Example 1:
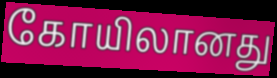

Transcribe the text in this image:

கோயிலானது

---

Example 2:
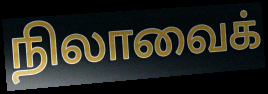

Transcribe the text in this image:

நிலாவைக்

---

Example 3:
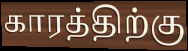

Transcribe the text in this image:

காரத்திற்கு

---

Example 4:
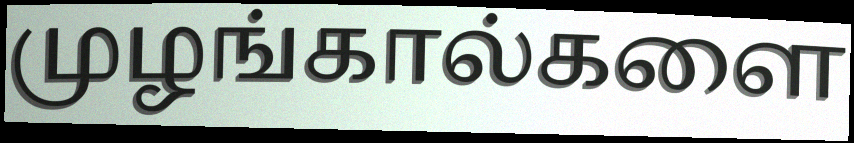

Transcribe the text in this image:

முழங்கால்களை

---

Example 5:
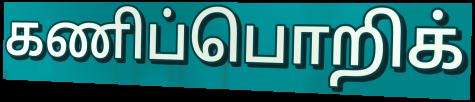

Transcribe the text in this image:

கணிப்பொறிக்